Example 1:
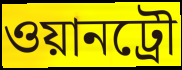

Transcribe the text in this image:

ওয়ানট্রৌ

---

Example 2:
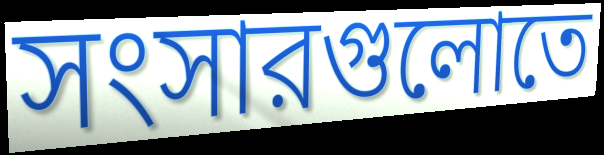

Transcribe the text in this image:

সংসারগুলোতে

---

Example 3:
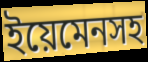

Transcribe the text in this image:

ইয়েমেনসহ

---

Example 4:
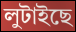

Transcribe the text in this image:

লুটাইছে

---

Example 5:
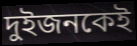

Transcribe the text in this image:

দুইজনকেই